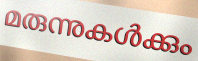
മരുന്നുകൾക്കും